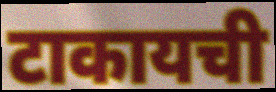
टाकायची